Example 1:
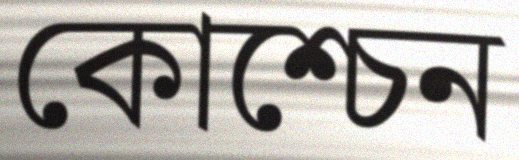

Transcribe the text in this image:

কোশ্চেন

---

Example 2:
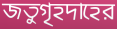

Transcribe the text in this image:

জতুগৃহদাহের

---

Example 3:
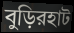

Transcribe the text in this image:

বুড়িরহাট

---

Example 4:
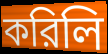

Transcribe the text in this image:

করিলি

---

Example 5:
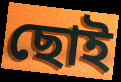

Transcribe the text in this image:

ছোই